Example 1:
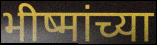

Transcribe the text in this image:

भीष्मांच्या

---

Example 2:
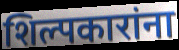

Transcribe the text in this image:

शिल्पकारांना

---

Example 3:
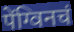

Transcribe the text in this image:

पेंग्विनचं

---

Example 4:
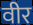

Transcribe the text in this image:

वीर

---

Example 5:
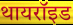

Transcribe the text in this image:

थायरॉइड